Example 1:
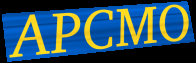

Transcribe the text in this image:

APCMO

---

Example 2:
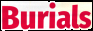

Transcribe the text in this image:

Burials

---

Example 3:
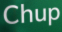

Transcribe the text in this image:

Chup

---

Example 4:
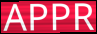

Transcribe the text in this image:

APPR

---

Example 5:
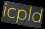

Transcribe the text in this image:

icpld